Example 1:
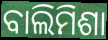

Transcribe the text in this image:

ବାଲିମିଶା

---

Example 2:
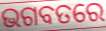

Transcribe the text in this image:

ଭଗବତରେ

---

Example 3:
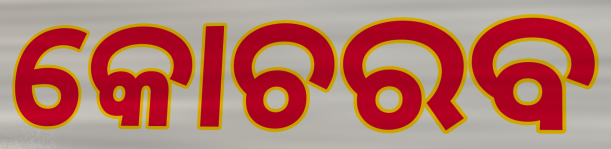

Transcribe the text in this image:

କୋଚରବ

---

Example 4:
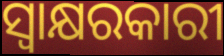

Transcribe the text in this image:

ସ୍ୱାକ୍ଷରକାରୀ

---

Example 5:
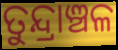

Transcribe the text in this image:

ତୁନ୍ଦ୍ରାଞ୍ଚଳ